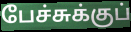
பேச்சுக்குப்